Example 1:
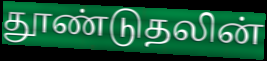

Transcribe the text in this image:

தூண்டுதலின்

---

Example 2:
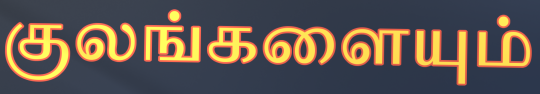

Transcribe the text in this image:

குலங்களையும்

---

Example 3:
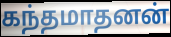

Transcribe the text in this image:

கந்தமாதனன்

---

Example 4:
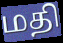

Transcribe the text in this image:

மதி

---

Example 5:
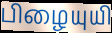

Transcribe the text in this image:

பிழையுயி